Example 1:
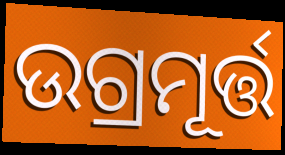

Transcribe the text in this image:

ଉଗ୍ରମୂର୍ତ୍ତ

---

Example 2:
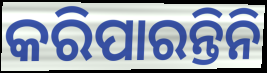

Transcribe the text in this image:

କରିପାରନ୍ତିନି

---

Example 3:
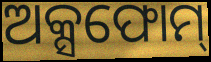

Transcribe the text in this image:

ଅକ୍ସଫୋମ୍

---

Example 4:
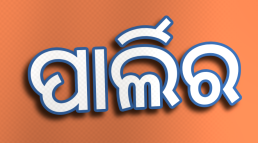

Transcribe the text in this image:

ପାର୍ଲିର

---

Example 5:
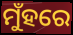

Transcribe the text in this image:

ମୁଁହରେ